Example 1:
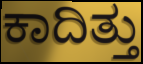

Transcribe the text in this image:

ಕಾದಿತ್ತು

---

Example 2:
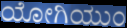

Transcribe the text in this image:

ಯೋಗಿಯುಂ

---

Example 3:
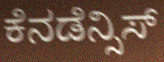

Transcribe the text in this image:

ಕೆನಡೆನ್ಸಿಸ್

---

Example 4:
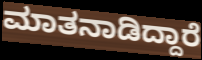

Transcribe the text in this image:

ಮಾತನಾಡಿದ್ದಾರೆ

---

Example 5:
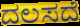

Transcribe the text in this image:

ದಲಸದೆ